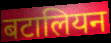
बटालियन